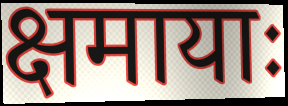
क्षमायाः